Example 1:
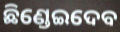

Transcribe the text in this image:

ଛିଣ୍ଡେଇଦେବ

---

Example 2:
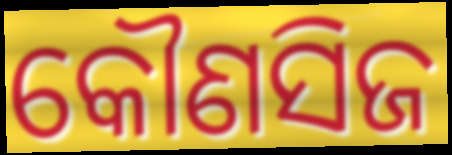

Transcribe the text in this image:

କୌଣସିଜ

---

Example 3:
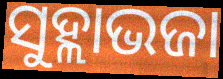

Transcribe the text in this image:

ସୁହ୍ଲାଭଜା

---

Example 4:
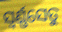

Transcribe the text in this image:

ସ୍ଵର୍ଣ୍ଣସେତୁ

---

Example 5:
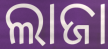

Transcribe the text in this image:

ଲାଜା